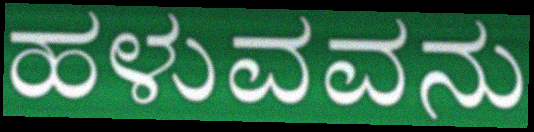
ಹಳುವವನು